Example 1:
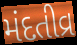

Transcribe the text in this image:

મંદતીવ્ર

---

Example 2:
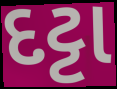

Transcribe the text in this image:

દટ્ટા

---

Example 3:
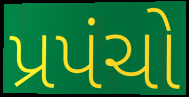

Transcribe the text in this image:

પ્રપંચો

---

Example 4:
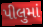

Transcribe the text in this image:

પીલુમાં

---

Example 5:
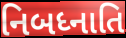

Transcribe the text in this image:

નિબધ્નાતિ